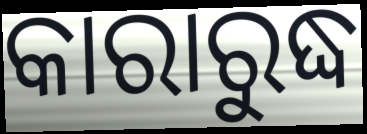
କାରାରୁଦ୍ଧ